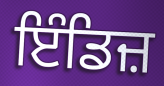
ਇੰਡਿਜ਼